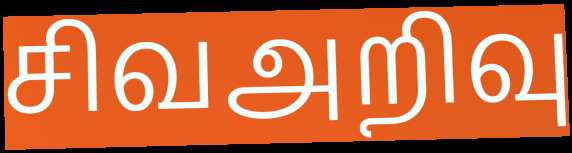
சிவஅறிவு